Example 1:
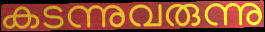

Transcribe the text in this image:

കടന്നുവരുന്നു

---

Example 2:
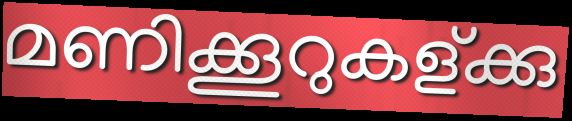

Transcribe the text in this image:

മണിക്കൂറുകള്ക്കു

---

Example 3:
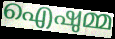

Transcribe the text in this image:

ഐഷുമ്മ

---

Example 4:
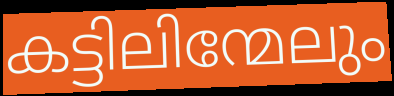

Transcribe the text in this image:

കട്ടിലിന്മേലും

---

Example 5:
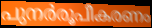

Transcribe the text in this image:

പുനർരൂപീകരണം